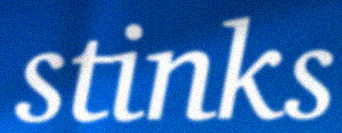
stinks